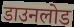
डाउनलोड